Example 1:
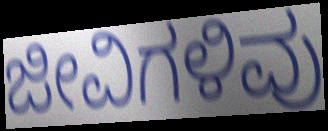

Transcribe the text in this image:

ಜೀವಿಗಳಿವು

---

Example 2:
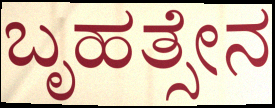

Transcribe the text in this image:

ಬೃಹತ್ಸೇನ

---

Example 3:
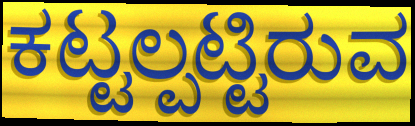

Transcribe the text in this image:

ಕಟ್ಟಲ್ಪಟ್ಟಿರುವ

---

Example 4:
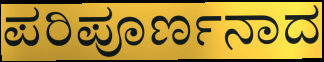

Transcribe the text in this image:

ಪರಿಪೂರ್ಣನಾದ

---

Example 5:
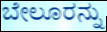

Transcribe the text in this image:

ಬೇಲೂರನ್ನು